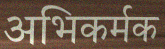
अभिकर्मक